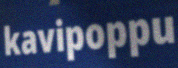
kavipoppu